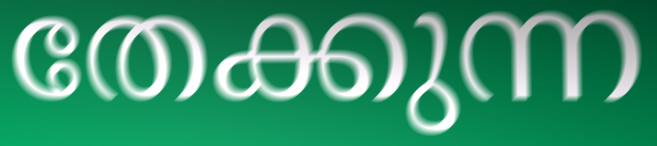
തേക്കുന്ന